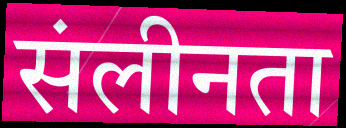
संलीनता